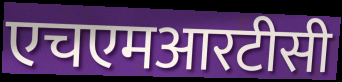
एचएमआरटीसी